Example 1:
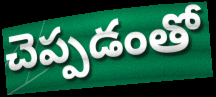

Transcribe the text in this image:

చెప్పడంతో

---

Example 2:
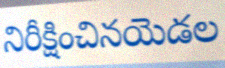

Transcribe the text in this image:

నిరీక్షించినయెడల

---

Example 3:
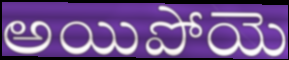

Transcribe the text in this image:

అయిపోయె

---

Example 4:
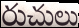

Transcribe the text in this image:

రుచులు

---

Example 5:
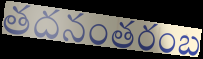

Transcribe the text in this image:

తదనంతరంబ